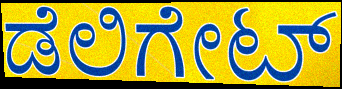
ಡೆಲಿಗೇಟ್